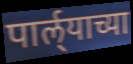
पार्ल्याच्या